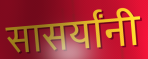
सासर्यांनी